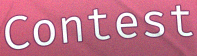
Contest